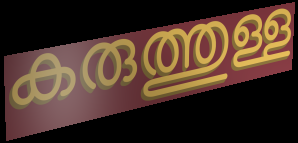
കരുത്തുള്ള